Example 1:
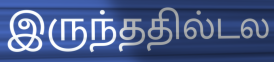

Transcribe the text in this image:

இருந்ததில்டல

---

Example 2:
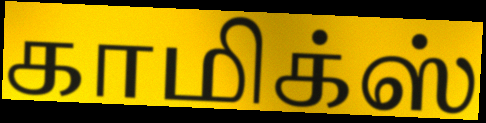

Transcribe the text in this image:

காமிக்ஸ்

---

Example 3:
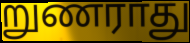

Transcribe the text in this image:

றுணராது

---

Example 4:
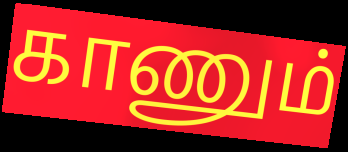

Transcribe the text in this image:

காணும்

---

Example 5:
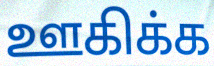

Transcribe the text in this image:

ஊகிக்க